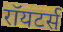
रॉयटर्स